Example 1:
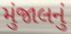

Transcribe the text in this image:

મુંજાલનું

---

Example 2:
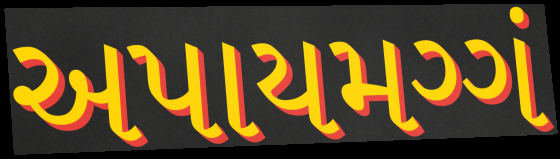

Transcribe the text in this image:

અપાયમગ્ગં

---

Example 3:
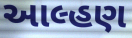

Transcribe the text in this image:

આલ્હણ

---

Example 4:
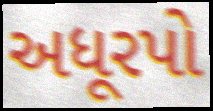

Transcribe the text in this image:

અધૂરપો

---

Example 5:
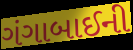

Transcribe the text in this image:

ગંગાબાઈની